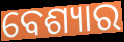
ବେଶ୍ୟାର